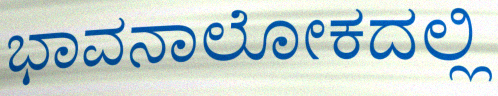
ಭಾವನಾಲೋಕದಲ್ಲಿ